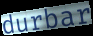
durbar